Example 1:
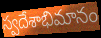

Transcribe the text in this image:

స్వదేశాభిమానం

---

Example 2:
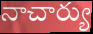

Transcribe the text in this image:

నాచార్యు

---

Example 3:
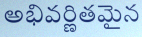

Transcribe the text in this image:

అభివర్ణితమైన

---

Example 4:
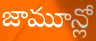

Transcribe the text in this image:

జామూన్లో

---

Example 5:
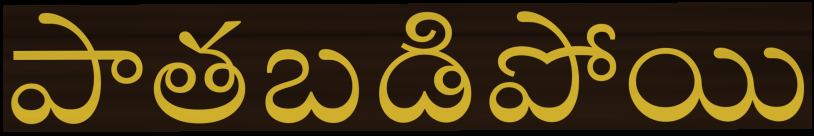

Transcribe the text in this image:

పాతబడిపోయి